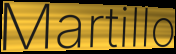
Martillo